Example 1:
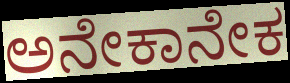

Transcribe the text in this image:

ಅನೇಕಾನೇಕ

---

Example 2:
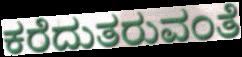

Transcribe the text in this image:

ಕರೆದುತರುವಂತೆ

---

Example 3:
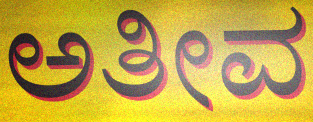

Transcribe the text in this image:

ಅತೀವ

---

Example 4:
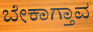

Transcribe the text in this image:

ಬೇಕಾಗ್ತಾವ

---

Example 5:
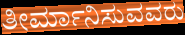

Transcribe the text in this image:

ತೀರ್ಮಾನಿಸುವವರು